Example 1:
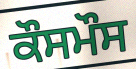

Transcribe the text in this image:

ਕੌਸਮੌਸ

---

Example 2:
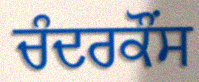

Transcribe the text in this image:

ਚੰਦਰਕੌਂਸ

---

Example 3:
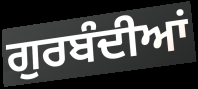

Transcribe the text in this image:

ਗੁਰਬੰਦੀਆਂ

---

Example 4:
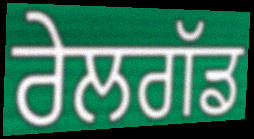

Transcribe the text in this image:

ਰੇਲਗੱਡ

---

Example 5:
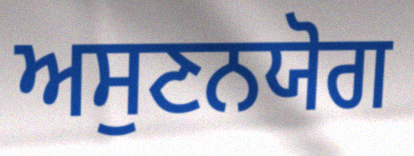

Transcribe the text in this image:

ਅਸੁਣਨਯੋਗ